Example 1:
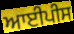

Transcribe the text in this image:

ਆਈਪੀਸ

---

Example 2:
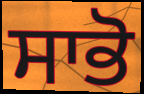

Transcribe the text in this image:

ਸਾਭੋ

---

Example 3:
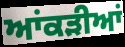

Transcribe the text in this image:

ਆਂਕੜੀਆਂ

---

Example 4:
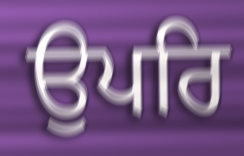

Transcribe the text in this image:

ਉਪਰਿ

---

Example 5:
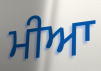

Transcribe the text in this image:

ਮੀਆ